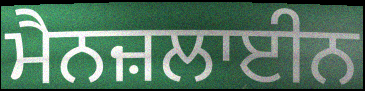
ਮੈਨਜ਼ਲਾਈਨ